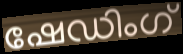
ഷേഡിംഗ്